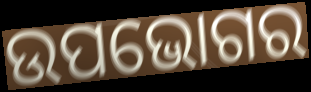
ଉପଭୋଗର